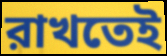
রাখতেই